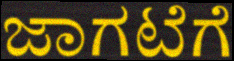
ಜಾಗಟೆಗೆ